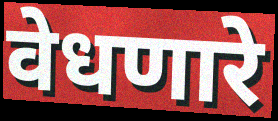
वेधणारे